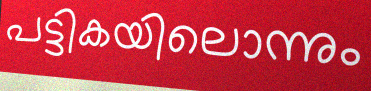
പട്ടികയിലൊന്നും